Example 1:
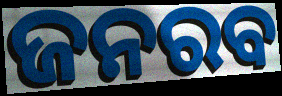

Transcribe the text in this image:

ଜନରବ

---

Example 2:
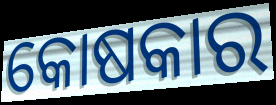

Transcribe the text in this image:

କୋଷକାର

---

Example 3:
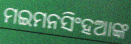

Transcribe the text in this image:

ମଇମନସିଂହଆଙ୍କ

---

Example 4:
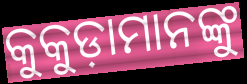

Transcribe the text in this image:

କୁକୁଡ଼ାମାନଙ୍କୁ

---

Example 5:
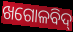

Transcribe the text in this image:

ଖଗୋଳବିଦ୍